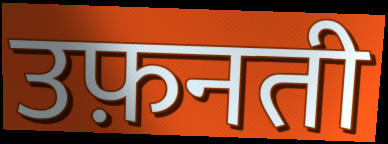
उफ़नती